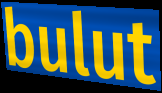
bulut